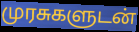
முரசுகளுடன்